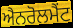
ਐਨਰੋਲਮੈਂਟ